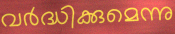
വർദ്ധിക്കുമെന്നു